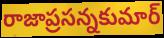
రాజాప్రసన్నకుమార్